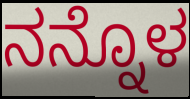
ನನ್ನೊಳ